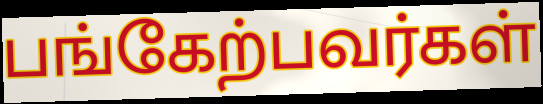
பங்கேற்பவர்கள்